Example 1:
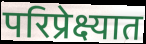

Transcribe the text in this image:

परिप्रेक्ष्यात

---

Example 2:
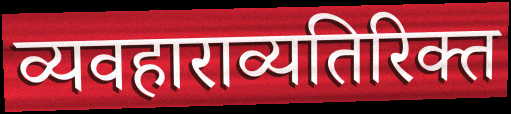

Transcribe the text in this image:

व्यवहाराव्यतिरिक्त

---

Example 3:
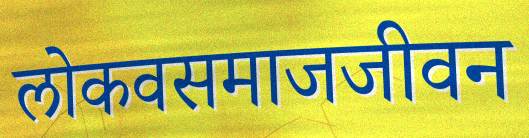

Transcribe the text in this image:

लोकवसमाजजीवन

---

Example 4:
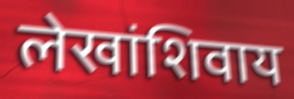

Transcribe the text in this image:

लेखांशिवाय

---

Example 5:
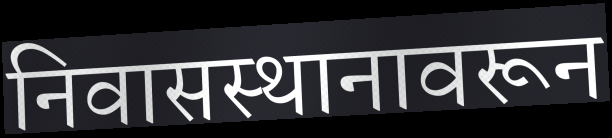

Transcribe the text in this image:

निवासस्थानावरून